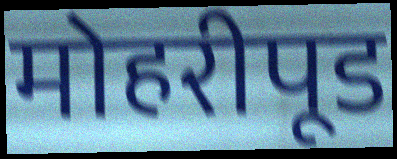
मोहरीपूड